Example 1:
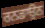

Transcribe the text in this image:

ਰਨਡਾਉਨ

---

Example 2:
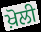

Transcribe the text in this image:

ਖ਼ੋਲੀ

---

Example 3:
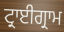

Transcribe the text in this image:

ਟ੍ਰਾਈਗ੍ਰਾਮ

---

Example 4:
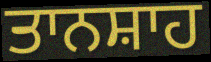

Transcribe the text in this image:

ਤਾਨਸ਼ਾਹ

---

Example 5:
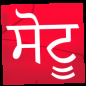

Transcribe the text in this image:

ਸੋਟੂ